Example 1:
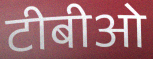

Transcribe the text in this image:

टीबीओ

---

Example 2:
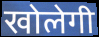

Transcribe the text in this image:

खोलेगी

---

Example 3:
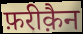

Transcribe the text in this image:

फ़रीक़ैन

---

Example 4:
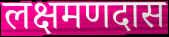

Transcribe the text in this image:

लक्षमणदास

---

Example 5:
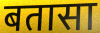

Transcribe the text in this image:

बतासा